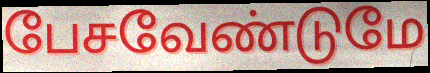
பேசவேண்டுமே